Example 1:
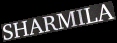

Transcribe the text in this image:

SHARMILA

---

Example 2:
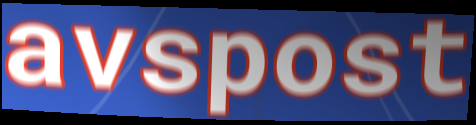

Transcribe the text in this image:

avspost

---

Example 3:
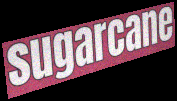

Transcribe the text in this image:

sugarcane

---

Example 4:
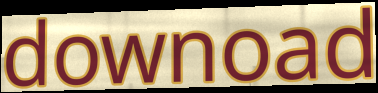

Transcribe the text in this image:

downoad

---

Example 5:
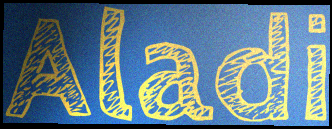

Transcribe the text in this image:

Aladi